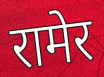
रामेर